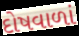
દોષવાળાં